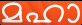
മഹാ